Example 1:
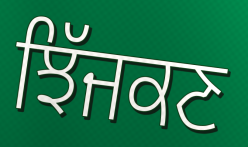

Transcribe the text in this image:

ਝਿੱਜਕਣ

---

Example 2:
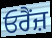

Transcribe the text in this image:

ਓਰੈਂਜ਼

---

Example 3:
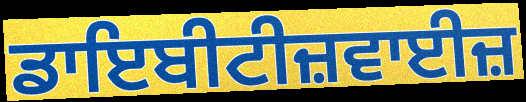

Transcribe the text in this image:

ਡਾਇਬੀਟੀਜ਼ਵਾਈਜ਼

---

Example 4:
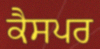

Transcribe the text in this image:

ਕੈਸਪਰ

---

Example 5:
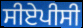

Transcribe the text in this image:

ਸੀਏਪੀਸੀ